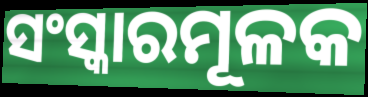
ସଂସ୍କାରମୂଳକ